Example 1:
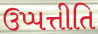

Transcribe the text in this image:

ઉપ્પત્તીતિ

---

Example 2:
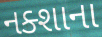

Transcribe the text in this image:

નક્શાના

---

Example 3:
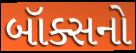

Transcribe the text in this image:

બૉક્સનો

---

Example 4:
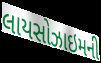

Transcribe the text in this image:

લાયસોઝાઇમની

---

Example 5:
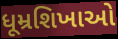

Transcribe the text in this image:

ધૂમ્રશિખાઓ